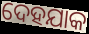
ଦେହଯାକ